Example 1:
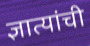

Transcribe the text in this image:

ज्ञात्यांची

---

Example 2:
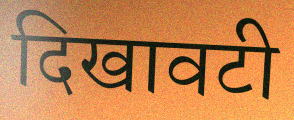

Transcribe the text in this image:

दिखावटी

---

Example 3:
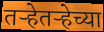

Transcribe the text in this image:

तऱ्हेतऱ्हेच्या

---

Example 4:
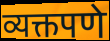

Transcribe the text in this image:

व्यक्तपणे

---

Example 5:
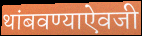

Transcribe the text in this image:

थांबवण्याऐवजी